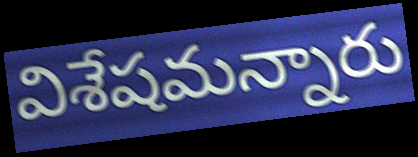
విశేషమన్నారు